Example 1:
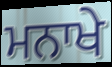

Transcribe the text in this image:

ਮਨਾਖੇ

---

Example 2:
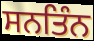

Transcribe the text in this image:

ਸਨਤਿੰਨ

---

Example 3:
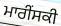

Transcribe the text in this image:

ਮਾਰੀੰਸਕੀ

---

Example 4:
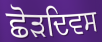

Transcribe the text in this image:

ਛੋੜਦਿਵਸ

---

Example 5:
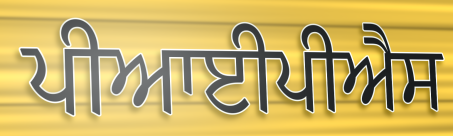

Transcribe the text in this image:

ਪੀਆਈਪੀਐਸ